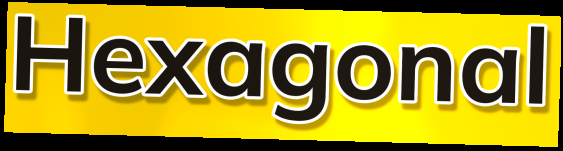
Hexagonal